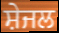
ਸ਼ੇਜਲ